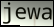
jewa